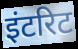
इंटरिट